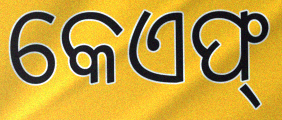
କେଏଫ୍